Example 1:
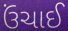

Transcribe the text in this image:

ઉંચાઈ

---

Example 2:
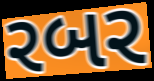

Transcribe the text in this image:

રબર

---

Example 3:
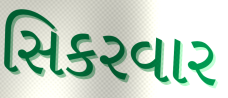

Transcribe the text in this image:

સિકરવાર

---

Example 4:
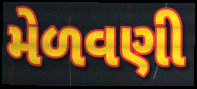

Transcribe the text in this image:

મેળવણી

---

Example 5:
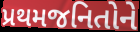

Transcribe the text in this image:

પ્રથમજનિતોને